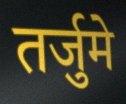
तर्जुमे